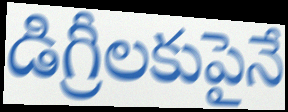
డిగ్రీలకుపైనే